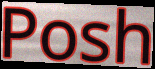
Posh